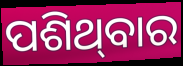
ପଶିଥ୍‌ବାର